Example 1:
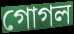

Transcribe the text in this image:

গোগল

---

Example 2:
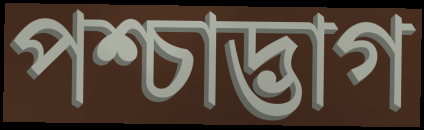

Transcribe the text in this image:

পশ্চাদ্ভাগ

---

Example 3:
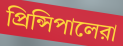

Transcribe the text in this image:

প্রিন্সিপালেরা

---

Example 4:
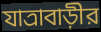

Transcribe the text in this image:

যাত্রাবাড়ীর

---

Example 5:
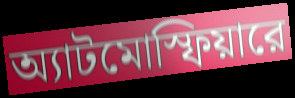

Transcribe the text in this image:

অ্যাটমোস্ফিয়ারে